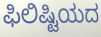
ಫಿಲಿಷ್ಟಿಯದ